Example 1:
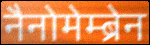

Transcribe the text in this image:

नैनोमेम्ब्रेन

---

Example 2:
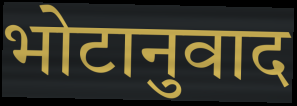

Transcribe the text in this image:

भोटानुवाद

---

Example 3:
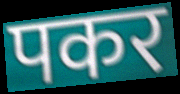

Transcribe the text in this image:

पकर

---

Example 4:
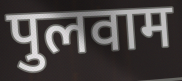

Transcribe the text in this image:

पुलवाम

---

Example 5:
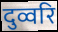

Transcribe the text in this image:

दुव्वरि